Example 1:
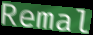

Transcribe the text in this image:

Remal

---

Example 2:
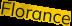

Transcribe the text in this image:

Florance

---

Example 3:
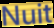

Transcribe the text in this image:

Nuit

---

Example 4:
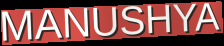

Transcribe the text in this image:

MANUSHYA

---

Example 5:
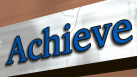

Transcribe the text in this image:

Achieve